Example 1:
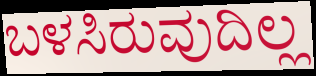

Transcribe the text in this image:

ಬಳಸಿರುವುದಿಲ್ಲ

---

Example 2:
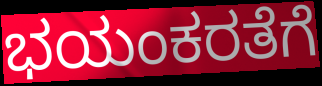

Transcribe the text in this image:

ಭಯಂಕರತೆಗೆ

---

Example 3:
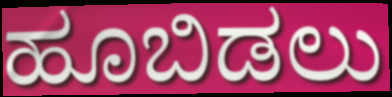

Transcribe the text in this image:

ಹೂಬಿಡಲು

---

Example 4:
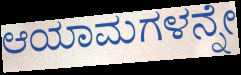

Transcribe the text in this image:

ಆಯಾಮಗಳನ್ನೇ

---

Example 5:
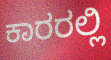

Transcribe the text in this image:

ಕಾರರಲ್ಲಿ